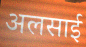
अलसाई